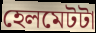
হেলমেটটা